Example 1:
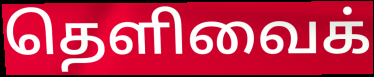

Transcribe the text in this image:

தெளிவைக்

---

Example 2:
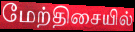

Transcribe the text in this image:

மேற்திசையில்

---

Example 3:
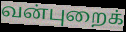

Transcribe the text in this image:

வன்புறைக்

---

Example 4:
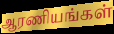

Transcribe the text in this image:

ஆரணியங்கள்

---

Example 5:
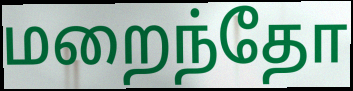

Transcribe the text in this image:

மறைந்தோ